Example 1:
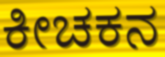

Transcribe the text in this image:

ಕೀಚಕನ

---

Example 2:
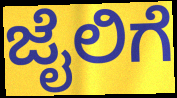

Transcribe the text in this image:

ಜೈಲಿಗೆ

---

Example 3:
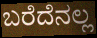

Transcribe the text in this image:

ಬರೆದೆನಲ್ಲ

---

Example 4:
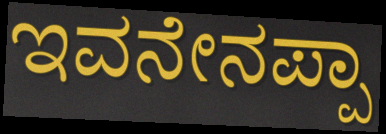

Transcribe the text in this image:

ಇವನೇನಪ್ಪಾ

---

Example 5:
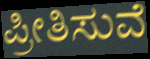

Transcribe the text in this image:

ಪ್ರೀತಿಸುವೆ